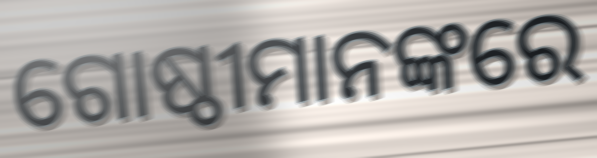
ଗୋଷ୍ଠୀମାନଙ୍କରେ